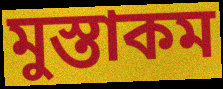
মুস্তাকম